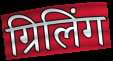
ग्रिलिंग